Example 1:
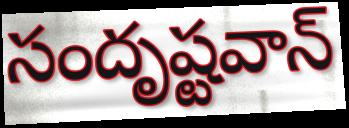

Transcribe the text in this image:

సందృష్టవాన్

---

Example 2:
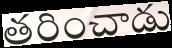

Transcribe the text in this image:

తరించాడు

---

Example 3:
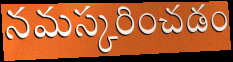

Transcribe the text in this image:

నమస్కరించడం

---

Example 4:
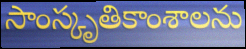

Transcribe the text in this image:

సాంస్కృతికాంశాలను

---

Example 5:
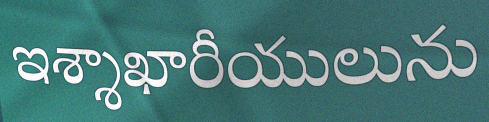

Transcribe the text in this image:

ఇశ్శాఖారీయులును